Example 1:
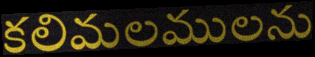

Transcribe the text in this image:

కలిమలములను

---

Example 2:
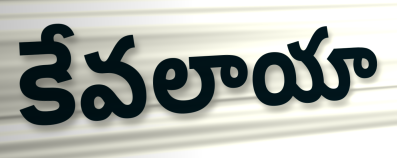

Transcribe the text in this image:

కేవలాయా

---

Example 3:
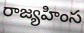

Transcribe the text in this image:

రాజ్యహింస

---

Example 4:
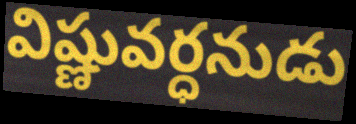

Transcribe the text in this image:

విష్ణువర్ధనుడు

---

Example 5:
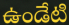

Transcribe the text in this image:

ఉండేటి